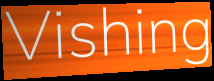
Vishing